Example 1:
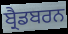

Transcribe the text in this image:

ਬ੍ਰੈਡਬਰਨ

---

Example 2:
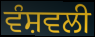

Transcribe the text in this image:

ਵੰਸ਼ਵਲੀ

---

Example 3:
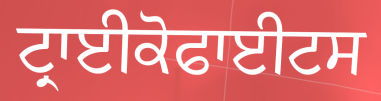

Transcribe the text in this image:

ਟ੍ਰਾਈਕੋਫਾਈਟਸ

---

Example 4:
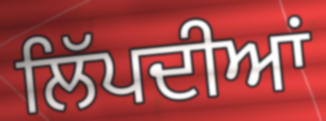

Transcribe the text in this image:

ਲਿੱਪਦੀਆਂ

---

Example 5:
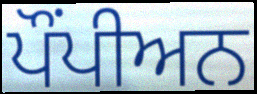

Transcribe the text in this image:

ਪੌਂਪੀਅਨ